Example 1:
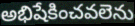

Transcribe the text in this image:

అభిషేకించవలెను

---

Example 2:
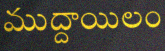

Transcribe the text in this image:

ముద్దాయిలం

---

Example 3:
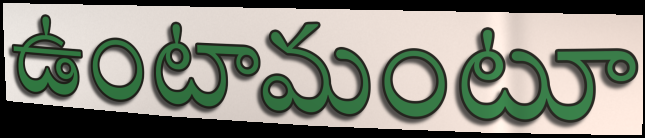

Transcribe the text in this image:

ఉంటామంటూ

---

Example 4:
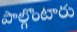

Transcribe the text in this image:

పాల్గొంటారు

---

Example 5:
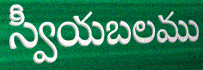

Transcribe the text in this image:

స్వీయబలము